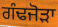
ਗੰਢਜੋੜਾ